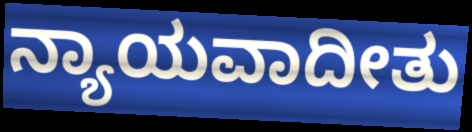
ನ್ಯಾಯವಾದೀತು